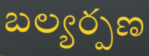
బల్యర్పణ